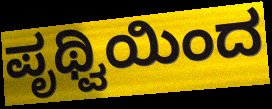
ಪೃಥ್ವಿಯಿಂದ